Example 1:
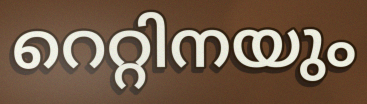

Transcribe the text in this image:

റെറ്റിനയും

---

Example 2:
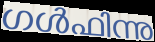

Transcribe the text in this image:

ഗൾഫിന്നു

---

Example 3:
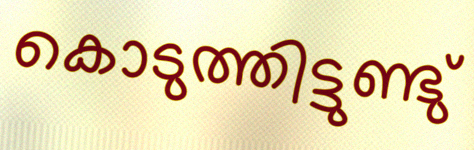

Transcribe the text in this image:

കൊടുത്തിട്ടുണ്ടു്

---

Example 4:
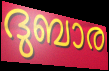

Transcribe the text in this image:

ദുബാര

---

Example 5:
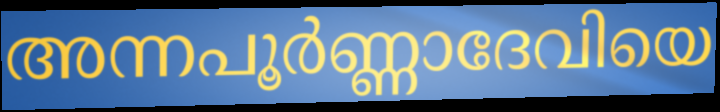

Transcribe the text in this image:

അന്നപൂർണ്ണാദേവിയെ